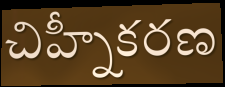
చిహ్నీకరణ